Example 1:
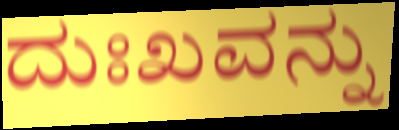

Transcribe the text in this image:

ದುಃಖವನ್ನು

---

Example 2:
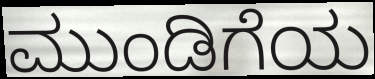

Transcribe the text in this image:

ಮುಂಡಿಗೆಯ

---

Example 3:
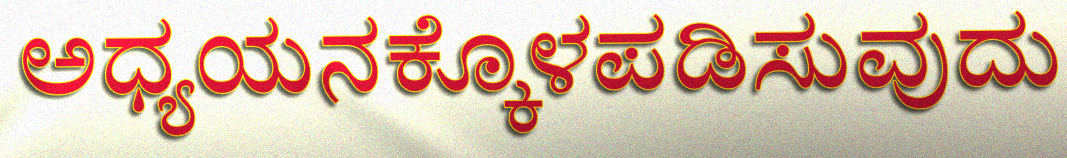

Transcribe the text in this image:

ಅಧ್ಯಯನಕ್ಕೊಳಪಡಿಸುವುದು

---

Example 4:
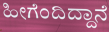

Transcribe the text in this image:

ಹೀಗೆಂದಿದ್ದಾನೆ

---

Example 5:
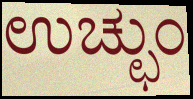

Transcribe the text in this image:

ಉಚ್ಛುಂ